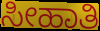
ಸೀಹಾತಿ